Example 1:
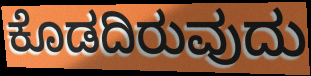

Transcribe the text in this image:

ಕೊಡದಿರುವುದು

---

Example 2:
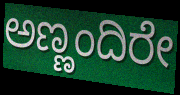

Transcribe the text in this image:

ಅಣ್ಣಂದಿರೇ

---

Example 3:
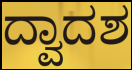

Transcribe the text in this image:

ದ್ವಾದಶ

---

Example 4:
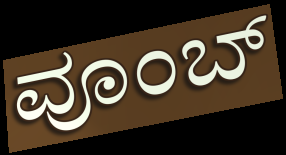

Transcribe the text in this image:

ವೂಂಬ್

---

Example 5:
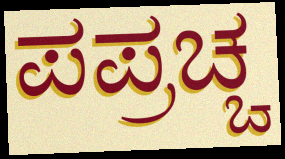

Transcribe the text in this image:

ಪಪ್ರಚ್ಚ